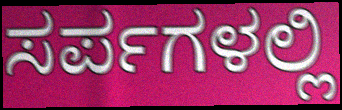
ಸರ್ಪಗಳಲ್ಲಿ